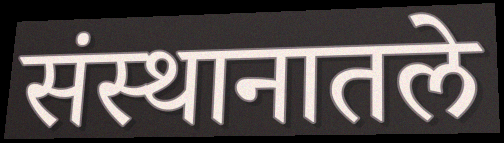
संस्थानातले